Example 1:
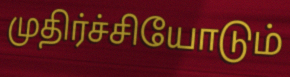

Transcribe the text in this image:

முதிர்ச்சியோடும்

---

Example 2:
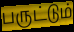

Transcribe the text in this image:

பருட்டும்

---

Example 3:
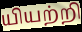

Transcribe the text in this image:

யியற்றி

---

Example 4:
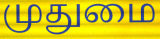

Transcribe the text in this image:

முதுமை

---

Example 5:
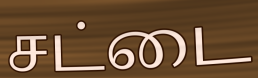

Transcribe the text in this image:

சட்டை